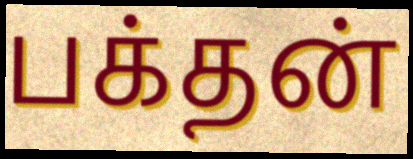
பக்தன்